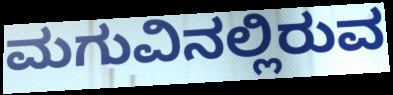
ಮಗುವಿನಲ್ಲಿರುವ